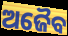
ଅଜୈବ